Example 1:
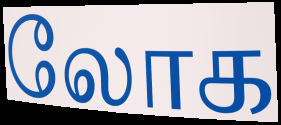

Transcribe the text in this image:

லோக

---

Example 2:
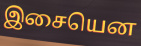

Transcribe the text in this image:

இசையென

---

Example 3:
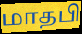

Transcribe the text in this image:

மாதபி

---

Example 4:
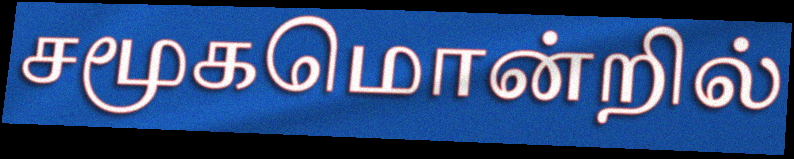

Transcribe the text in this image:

சமூகமொன்றில்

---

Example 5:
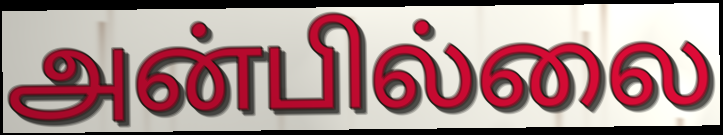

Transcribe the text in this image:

அன்பில்லை